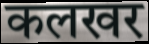
कलखर